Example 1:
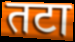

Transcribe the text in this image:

तटा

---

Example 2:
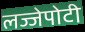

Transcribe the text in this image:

लज्जेपोटी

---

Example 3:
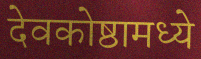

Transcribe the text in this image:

देवकोष्ठामध्ये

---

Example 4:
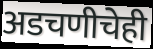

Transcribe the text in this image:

अडचणीचेही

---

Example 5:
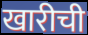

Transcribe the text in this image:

खारीची